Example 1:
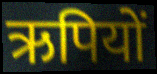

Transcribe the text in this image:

ऋपियों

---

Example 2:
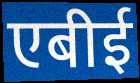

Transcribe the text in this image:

एबीई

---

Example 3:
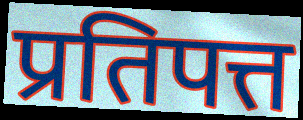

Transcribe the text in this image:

प्रतिपत्त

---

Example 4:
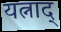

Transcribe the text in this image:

यत्नाद्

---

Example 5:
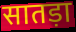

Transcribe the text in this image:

सातड़ा